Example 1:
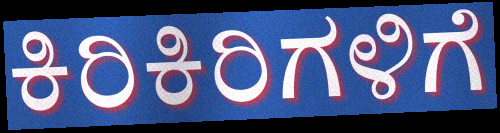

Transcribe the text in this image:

ಕಿರಿಕಿರಿಗಳಿಗೆ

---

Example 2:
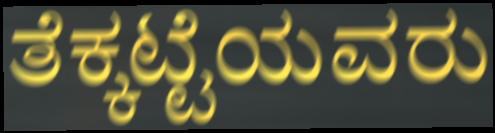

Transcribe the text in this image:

ತೆಕ್ಕಟ್ಟೆಯವರು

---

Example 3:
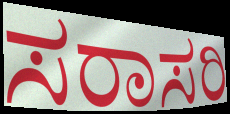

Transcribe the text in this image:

ಸರಾಸರಿ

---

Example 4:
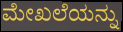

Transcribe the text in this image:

ಮೇಖಲೆಯನ್ನು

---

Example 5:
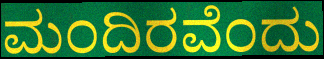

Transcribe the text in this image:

ಮಂದಿರವೆಂದು